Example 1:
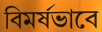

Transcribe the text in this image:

বিমর্ষভাবে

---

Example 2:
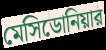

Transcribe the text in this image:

মেসিডোনিয়ার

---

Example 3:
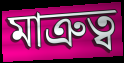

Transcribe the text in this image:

মাত্রুত্ব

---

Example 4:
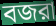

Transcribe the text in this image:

বজরা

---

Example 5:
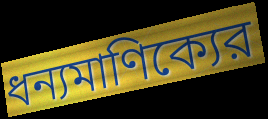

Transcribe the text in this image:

ধন্যমাণিক্যের